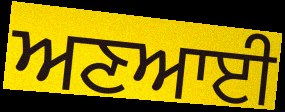
ਅਣਆਈ